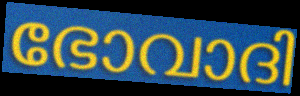
ഭോവാദി